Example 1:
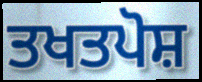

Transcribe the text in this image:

ਤਖਤਪੋਸ਼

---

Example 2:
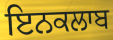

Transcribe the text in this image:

ਇਨਕਲਾਬ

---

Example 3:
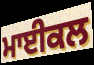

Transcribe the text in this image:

ਮਾਈਕਲ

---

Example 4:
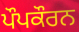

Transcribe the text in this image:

ਪੌਪਕੌਰਨ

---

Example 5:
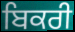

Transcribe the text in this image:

ਬਿਕਰੀ